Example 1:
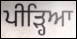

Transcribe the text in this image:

ਪੀੜ੍ਹਿਆ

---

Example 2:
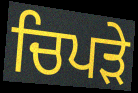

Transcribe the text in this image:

ਚਿਪੜੇ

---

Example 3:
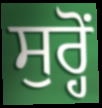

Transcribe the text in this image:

ਸੁਰ੍ਹੋਂ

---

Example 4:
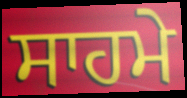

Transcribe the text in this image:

ਸਾਹਮੇ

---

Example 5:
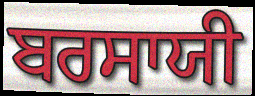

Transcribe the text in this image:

ਬਰਸਾਯੀ